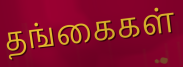
தங்கைகள்